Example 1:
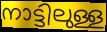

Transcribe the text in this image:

നാട്ടിലുള്ള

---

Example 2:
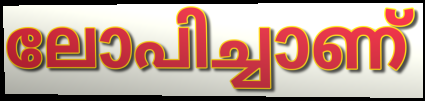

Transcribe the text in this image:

ലോപിച്ചാണ്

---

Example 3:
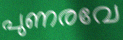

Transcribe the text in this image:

പുണരവേ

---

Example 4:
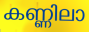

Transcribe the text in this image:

കണ്ണിലാ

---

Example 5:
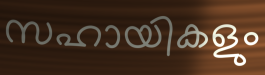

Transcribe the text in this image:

സഹായികളും